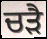
ਚੜੈ